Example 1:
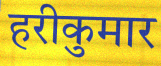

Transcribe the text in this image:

हरीकुमार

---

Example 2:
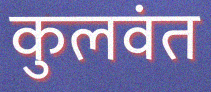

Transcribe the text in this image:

कुलवंत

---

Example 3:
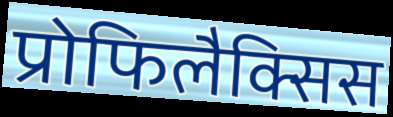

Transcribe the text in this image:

प्रोफिलैक्सिस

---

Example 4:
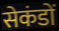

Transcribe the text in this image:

सेकंडों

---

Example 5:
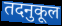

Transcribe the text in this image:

तदनुकूल